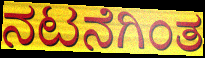
ನಟನೆಗಿಂತ